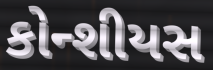
કોન્શીયસ